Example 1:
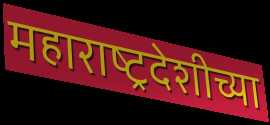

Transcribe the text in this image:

महाराष्ट्रदेशीच्या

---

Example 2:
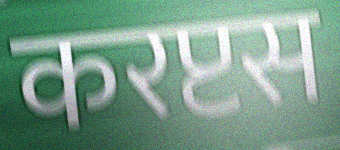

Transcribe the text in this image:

करप्टस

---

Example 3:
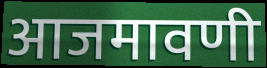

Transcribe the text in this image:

आजमावणी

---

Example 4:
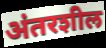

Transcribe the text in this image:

अंतरशील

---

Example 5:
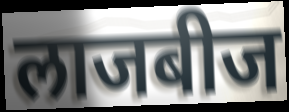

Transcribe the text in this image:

लाजबीज